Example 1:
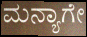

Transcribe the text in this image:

ಮನ್ಯಾಗೇ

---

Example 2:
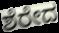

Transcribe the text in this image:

ಶೆರೇದ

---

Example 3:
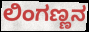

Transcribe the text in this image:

ಲಿಂಗಣ್ಣನ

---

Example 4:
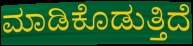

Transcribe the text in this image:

ಮಾಡಿಕೊಡುತ್ತಿದೆ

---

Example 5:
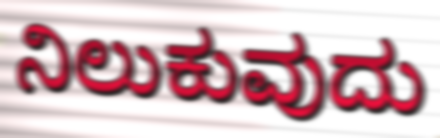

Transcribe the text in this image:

ನಿಲುಕುವುದು